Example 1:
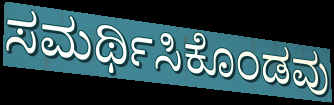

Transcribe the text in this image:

ಸಮರ್ಥಿಸಿಕೊಂಡವು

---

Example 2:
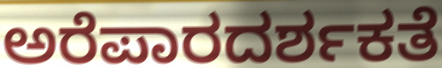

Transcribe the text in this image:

ಅರೆಪಾರದರ್ಶಕತೆ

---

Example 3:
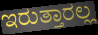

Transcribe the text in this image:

ಇರುತ್ತಾರಲ್ಲ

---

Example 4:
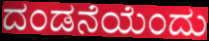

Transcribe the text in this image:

ದಂಡನೆಯೆಂದು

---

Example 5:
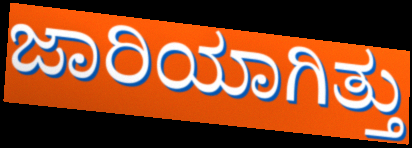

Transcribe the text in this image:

ಜಾರಿಯಾಗಿತ್ತು